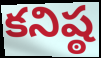
కనిష్ఠ